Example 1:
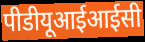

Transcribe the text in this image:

पीडीयूआईआईसी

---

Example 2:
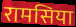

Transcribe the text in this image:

रामसिया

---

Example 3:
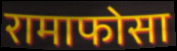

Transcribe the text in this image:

रामाफोसा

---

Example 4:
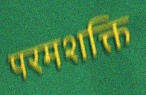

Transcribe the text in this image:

परमशक्ति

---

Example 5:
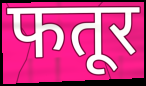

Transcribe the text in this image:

फतूर